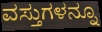
ವಸ್ತುಗಳನ್ನೂ